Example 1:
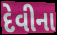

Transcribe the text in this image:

દેવીના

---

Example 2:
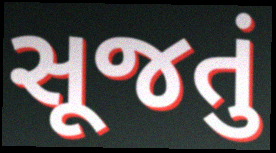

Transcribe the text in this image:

સૂજતું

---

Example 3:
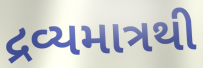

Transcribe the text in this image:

દ્રવ્યમાત્રથી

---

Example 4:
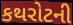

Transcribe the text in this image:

કથરોટની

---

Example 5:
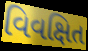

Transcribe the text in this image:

વિવક્ષિત